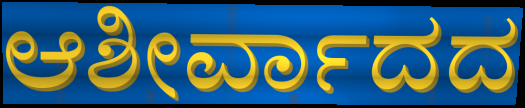
ಆಶೀರ್ವಾದದ